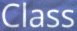
Class